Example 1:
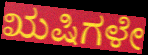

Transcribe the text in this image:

ಋಷಿಗಳೇ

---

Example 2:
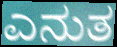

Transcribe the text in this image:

ಎನುತ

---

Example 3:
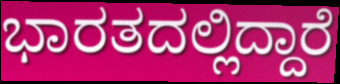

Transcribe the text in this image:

ಭಾರತದಲ್ಲಿದ್ದಾರೆ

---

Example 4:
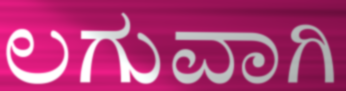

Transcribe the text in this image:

ಲಗುವಾಗಿ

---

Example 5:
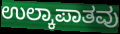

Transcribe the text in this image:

ಉಲ್ಕಾಪಾತವು